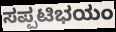
ಸಪ್ಪಟಿಭಯಂ